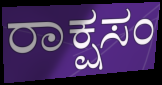
ರಾಕ್ಷಸಂ